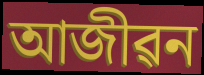
আজীৱন